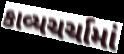
કાવ્યચર્ચામાં